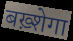
बख़्शेगा